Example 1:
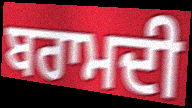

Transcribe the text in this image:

ਬਰਾਮਦੀ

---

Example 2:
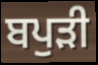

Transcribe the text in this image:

ਬਪੁੜੀ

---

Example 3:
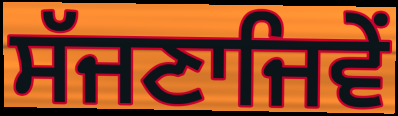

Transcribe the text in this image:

ਸੱਜਣਾਜਿਵੇਂ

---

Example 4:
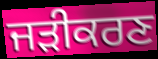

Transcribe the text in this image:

ਜੜੀਕਰਣ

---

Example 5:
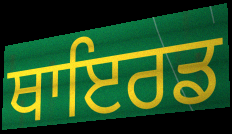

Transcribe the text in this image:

ਥਾਇਰਡ